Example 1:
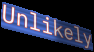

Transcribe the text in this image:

Unlikely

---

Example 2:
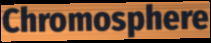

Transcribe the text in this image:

Chromosphere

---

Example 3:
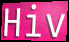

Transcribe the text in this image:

Hiv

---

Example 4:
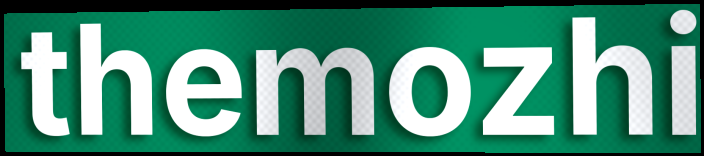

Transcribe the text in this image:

themozhi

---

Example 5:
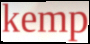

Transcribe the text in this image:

kemp